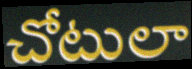
చోటులా